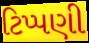
ટિપ્પણી